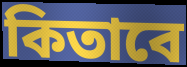
কিতাবে